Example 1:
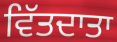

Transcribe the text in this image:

ਵਿੱਤਦਾਤਾ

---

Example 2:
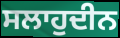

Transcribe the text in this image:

ਸਲਾਹੁਦੀਨ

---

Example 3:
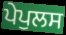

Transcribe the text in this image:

ਪੇਪੁਲਸ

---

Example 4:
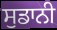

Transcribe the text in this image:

ਸੁਡਾਨੀ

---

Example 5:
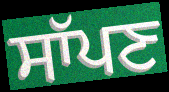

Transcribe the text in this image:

ਸਾੱਪਣ